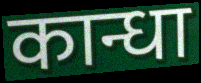
कान्धा